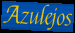
Azulejos